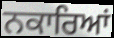
ਨਕਾਰਿਆਂ